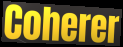
Coherer